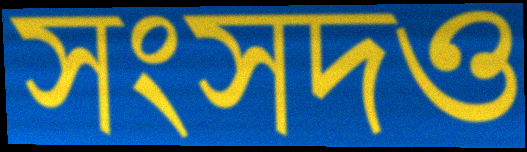
সংসদও